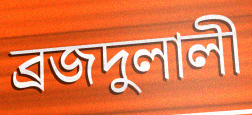
ব্রজদুলালী